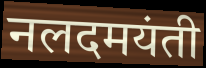
नलदमयंती